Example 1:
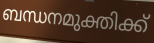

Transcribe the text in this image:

ബന്ധനമുക്തിക്ക്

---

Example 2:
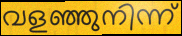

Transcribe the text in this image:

വളഞ്ഞുനിന്ന്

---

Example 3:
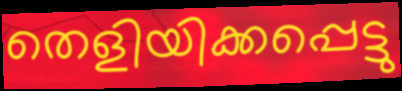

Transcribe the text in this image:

തെളിയിക്കപ്പെട്ടു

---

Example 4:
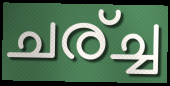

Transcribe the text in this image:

ചര്ച്ച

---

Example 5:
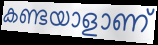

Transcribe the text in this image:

കണ്ടയാളാണ്